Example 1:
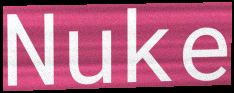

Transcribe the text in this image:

Nuke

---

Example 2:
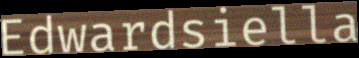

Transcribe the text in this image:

Edwardsiella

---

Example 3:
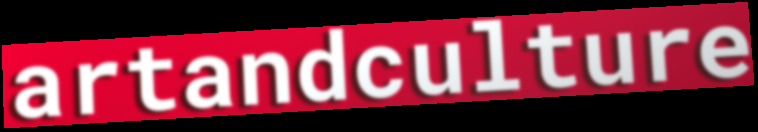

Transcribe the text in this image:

artandculture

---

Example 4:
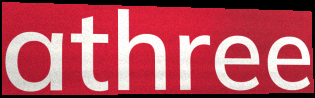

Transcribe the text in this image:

athree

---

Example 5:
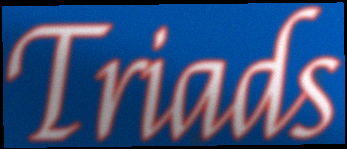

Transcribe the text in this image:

Triads